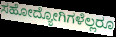
ಸಹೋದ್ಯೋಗಿಗಳೆಲ್ಲರೂ